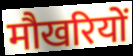
मौखरियों